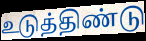
உடுத்திண்டு